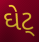
ઘેટ્